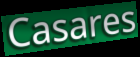
Casares